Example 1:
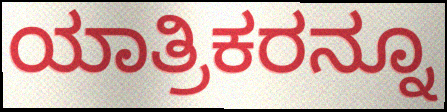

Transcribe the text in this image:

ಯಾತ್ರಿಕರನ್ನೂ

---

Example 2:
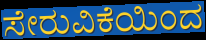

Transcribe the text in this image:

ಸೇರುವಿಕೆಯಿಂದ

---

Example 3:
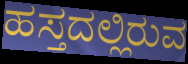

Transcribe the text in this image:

ಹಸ್ತದಲ್ಲಿರುವ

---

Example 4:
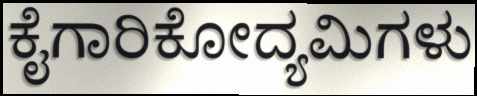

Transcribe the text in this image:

ಕೈಗಾರಿಕೋದ್ಯಮಿಗಳು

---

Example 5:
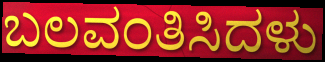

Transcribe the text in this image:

ಬಲವಂತಿಸಿದಳು